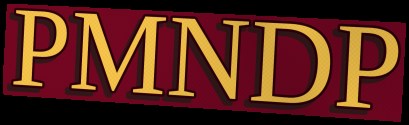
PMNDP